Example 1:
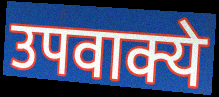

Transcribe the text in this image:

उपवाक्ये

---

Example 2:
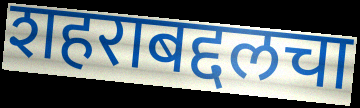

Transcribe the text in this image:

शहराबद्दलचा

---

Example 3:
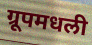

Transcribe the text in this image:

ग्रूपमधली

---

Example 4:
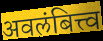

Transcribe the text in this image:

अवलंबित्त्व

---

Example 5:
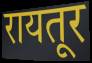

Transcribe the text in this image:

रायतूर